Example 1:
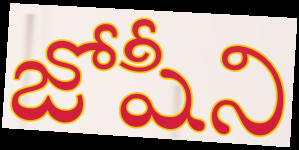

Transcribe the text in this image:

జోషీని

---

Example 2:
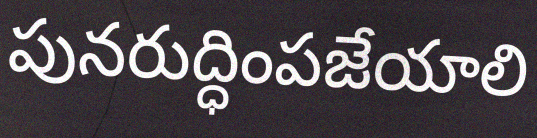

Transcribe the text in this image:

పునరుద్ధింపజేయాలి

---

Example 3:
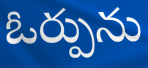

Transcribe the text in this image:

ఓర్పును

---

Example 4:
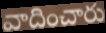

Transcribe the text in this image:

వాదించారు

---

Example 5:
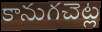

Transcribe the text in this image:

కానుగచెట్ల